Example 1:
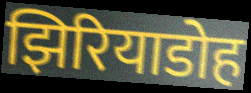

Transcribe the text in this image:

झिरियाडोह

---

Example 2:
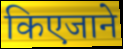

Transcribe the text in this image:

किएजाने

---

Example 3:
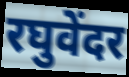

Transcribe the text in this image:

रघुवेंदर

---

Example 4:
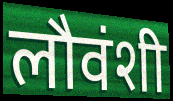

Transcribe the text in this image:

लौवंशी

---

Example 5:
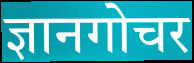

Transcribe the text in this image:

ज्ञानगोचर